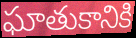
ఘాతుకానికి